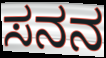
ಸನನ